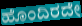
ಹೊಂದಿರದೇ